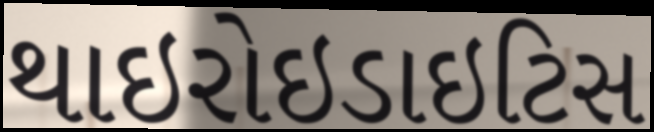
થાઇરોઇડાઇટિસ